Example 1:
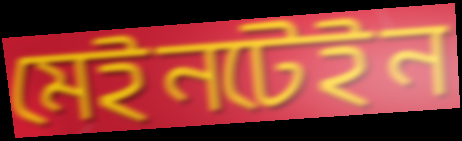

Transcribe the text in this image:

মেইনটেইন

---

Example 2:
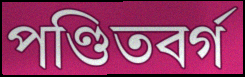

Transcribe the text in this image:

পণ্ডিতবর্গ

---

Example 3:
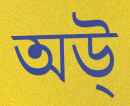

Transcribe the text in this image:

অউ্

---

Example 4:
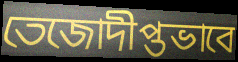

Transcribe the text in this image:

তেজোদীপ্তভাবে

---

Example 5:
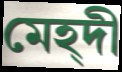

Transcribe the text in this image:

মেহ্দী